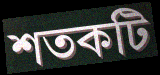
শতকটি